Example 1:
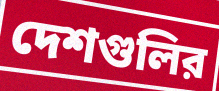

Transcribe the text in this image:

দেশগুলির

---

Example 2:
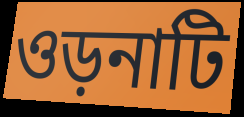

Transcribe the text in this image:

ওড়নাটি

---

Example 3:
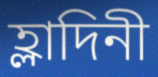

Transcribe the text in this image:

হ্লাদিনী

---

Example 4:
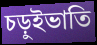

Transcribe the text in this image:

চড়ুইভাতি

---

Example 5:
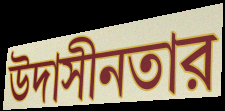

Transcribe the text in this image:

উদাসীনতার